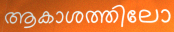
ആകാശത്തിലോ